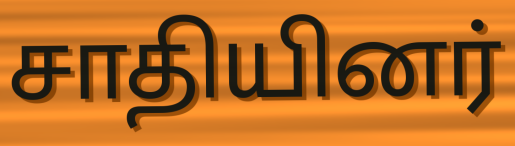
சாதியினர்